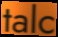
talc